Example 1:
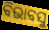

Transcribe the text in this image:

ବିଭାବସୁ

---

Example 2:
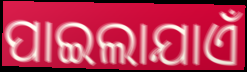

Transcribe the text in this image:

ପାଇଲାଯାଏଁ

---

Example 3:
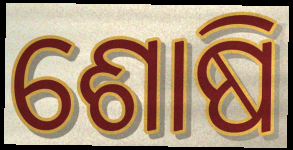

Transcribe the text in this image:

ଶୋଷି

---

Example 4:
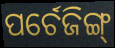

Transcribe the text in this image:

ପର୍ଚେଜିଙ୍ଗ୍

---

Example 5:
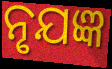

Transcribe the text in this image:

ନୃଯଜ୍ଞ